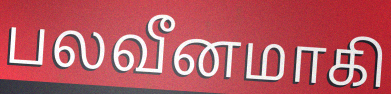
பலவீனமாகி